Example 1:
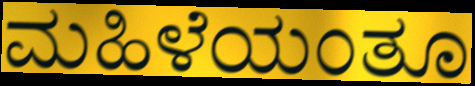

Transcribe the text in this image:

ಮಹಿಳೆಯಂತೂ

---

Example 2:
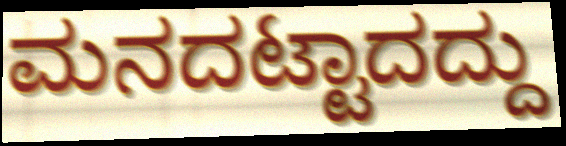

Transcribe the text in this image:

ಮನದಟ್ಟಾದದ್ದು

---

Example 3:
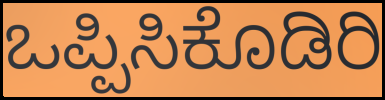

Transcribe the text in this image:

ಒಪ್ಪಿಸಿಕೊಡಿರಿ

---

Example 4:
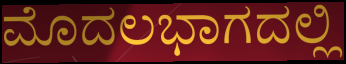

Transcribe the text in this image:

ಮೊದಲಭಾಗದಲ್ಲಿ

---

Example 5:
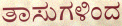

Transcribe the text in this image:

ತಾಸುಗಳಿಂದ